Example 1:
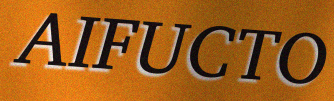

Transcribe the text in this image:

AIFUCTO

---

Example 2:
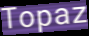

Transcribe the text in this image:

Topaz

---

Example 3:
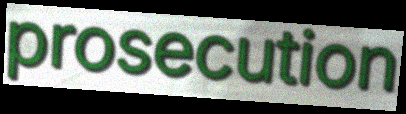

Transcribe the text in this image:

prosecution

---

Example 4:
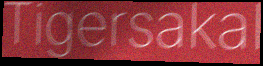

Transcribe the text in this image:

Tigersakal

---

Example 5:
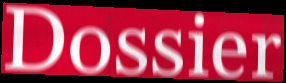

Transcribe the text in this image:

Dossier